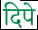
दिपे